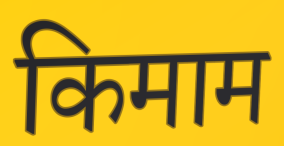
किमाम